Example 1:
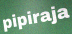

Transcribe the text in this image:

pipiraja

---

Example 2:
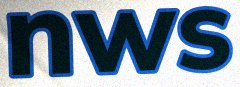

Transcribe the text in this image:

nws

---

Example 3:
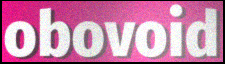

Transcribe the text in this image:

obovoid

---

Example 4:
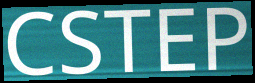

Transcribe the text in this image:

CSTEP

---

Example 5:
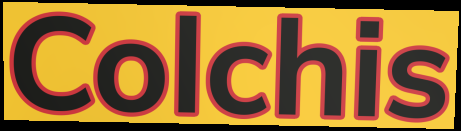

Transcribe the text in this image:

Colchis